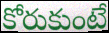
కోరుకుంటే